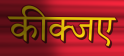
कीक्जए